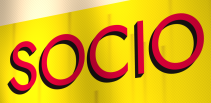
SOCIO